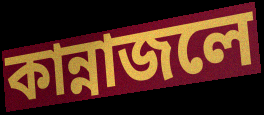
কান্নাজলে